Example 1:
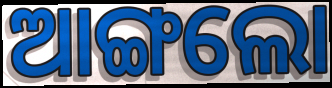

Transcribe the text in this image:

ଆଙ୍ଗଲୋ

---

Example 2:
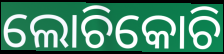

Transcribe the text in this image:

ଲୋଚିକୋଚି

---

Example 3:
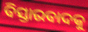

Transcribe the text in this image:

ବିସ୍ତାରବାଦକୁ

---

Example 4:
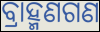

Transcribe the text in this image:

ବ୍ରାହ୍ମଣଗଣ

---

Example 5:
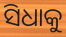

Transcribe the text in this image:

ସିଧାକୁ